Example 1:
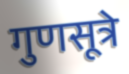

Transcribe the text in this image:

गुणसूत्रे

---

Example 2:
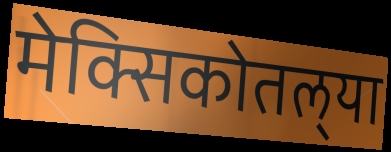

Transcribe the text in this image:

मेक्सिकोतल्या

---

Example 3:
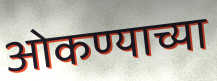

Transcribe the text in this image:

ओकण्याच्या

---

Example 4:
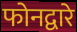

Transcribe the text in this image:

फोनद्वारे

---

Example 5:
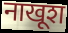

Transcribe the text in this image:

नाखूश